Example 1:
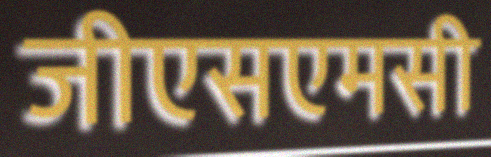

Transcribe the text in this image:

जीएसएमसी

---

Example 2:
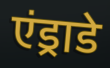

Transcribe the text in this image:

एंड्राडे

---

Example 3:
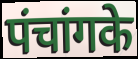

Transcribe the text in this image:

पंचांगके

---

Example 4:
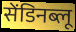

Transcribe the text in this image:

सेंडिनब्लू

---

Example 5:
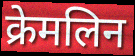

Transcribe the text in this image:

क्रेमलिन